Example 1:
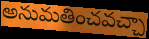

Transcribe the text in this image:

అనుమతించవచ్చా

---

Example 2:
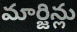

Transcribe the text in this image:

మార్జిన్లు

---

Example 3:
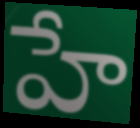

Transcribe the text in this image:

హే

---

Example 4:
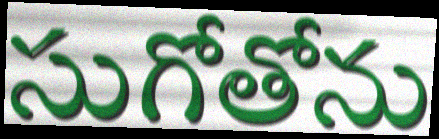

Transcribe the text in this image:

సుగోతోను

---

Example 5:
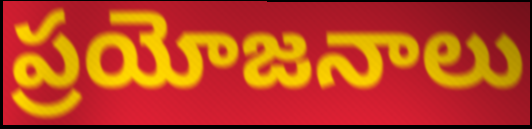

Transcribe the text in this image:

ప్రయోజనాలు